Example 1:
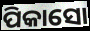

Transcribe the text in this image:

ପିକାସୋ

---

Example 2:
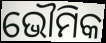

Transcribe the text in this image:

ଭୌମିକ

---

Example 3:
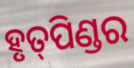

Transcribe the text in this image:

ହୃତ୍‌ପିଣ୍ଡର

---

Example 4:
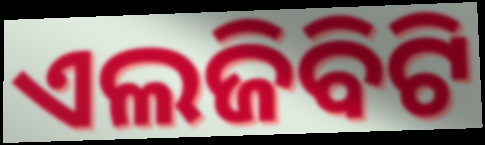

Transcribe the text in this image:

ଏଲଜିବିଟି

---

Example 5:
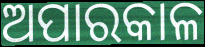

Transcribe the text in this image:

ଅପାରକାଳ